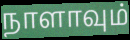
நாளாவும்